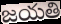
జయతి